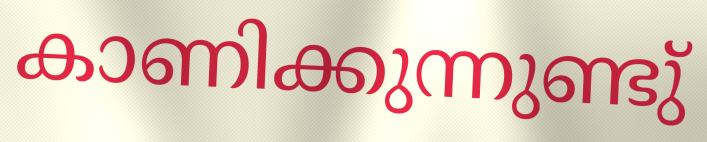
കാണിക്കുന്നുണ്ടു്